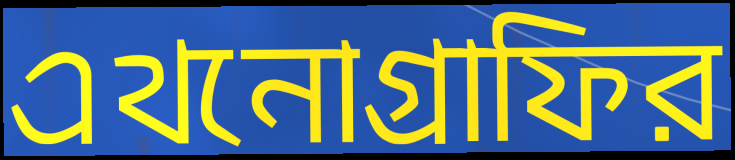
এথনোগ্রাফির